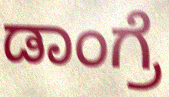
ಡಾಂಗ್ರೆ